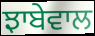
ਝਾਬੇਵਾਲ